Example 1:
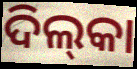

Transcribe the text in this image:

ଦିଲ୍‌କା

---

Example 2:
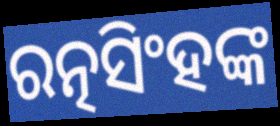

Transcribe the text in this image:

ରତ୍ନସିଂହଙ୍କ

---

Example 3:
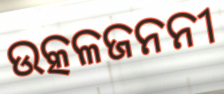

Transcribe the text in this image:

ଉତ୍କଳଜନନୀ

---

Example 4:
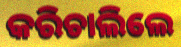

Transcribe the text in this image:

କରିଚାଲିଲେ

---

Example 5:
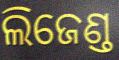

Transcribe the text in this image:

ଲିଜେଣ୍ଡ